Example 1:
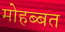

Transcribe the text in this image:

मोहब्बत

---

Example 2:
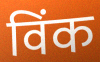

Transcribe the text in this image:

विंक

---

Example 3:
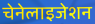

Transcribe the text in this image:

चेनेलाइजेशन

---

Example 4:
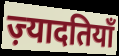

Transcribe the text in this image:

ज़्यादतियाँ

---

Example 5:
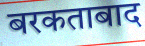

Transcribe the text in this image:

बरकताबाद